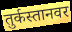
तुर्कस्तानवर